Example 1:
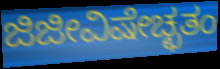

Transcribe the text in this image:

ಜಿಜೀವಿಷೇಚ್ಛತಂ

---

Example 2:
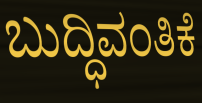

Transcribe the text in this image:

ಬುದ್ಧಿವಂತಿಕೆ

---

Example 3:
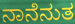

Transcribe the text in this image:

ನಾನೆನುತ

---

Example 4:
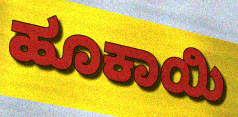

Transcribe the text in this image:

ಹೂಕಾಯಿ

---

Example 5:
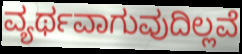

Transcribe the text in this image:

ವ್ಯರ್ಥವಾಗುವುದಿಲ್ಲವೆ